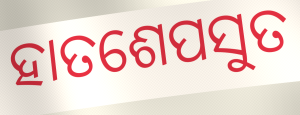
ହାତଶେପସୁତ